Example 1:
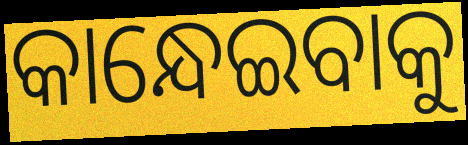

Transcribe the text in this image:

କାନ୍ଧେଇବାକୁ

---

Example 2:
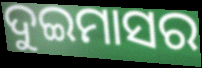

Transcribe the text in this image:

ଦୁଇମାସର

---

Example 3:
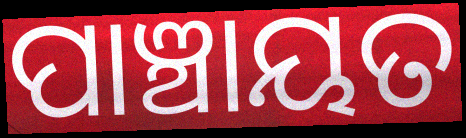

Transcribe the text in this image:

ପାଞ୍ଚାୟତ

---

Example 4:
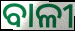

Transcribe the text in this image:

ବାଳୀ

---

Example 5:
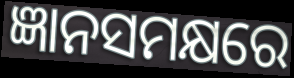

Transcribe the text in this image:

ଜ୍ଞାନସମକ୍ଷରେ